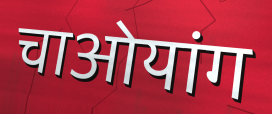
चाओयांग